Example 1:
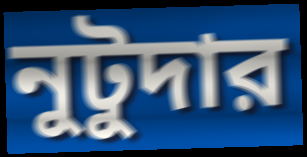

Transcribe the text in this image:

নুটুদার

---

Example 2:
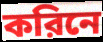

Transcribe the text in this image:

করিনে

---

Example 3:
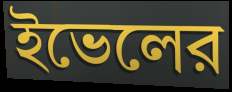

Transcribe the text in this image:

ইভেলের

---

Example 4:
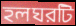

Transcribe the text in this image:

হলঘরটি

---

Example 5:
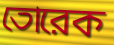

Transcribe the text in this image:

তোরেক